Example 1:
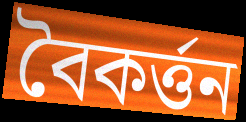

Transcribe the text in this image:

বৈকর্ত্তন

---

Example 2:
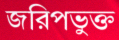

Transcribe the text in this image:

জরিপভুক্ত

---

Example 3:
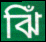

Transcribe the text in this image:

ঝিঁ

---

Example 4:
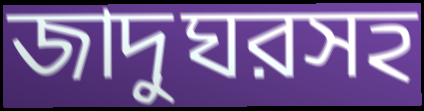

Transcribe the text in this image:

জাদুঘরসহ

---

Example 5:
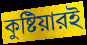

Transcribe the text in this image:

কুষ্টিয়ারই